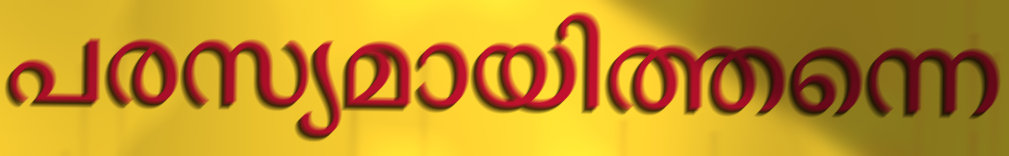
പരസ്യമായിത്തന്നെ